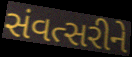
સંવત્સરીને